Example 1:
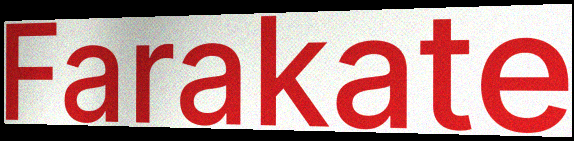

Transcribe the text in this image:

Farakate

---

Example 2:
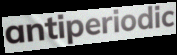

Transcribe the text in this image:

antiperiodic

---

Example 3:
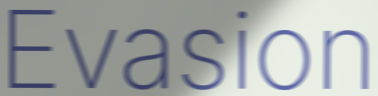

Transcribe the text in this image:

Evasion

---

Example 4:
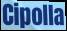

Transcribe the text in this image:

Cipolla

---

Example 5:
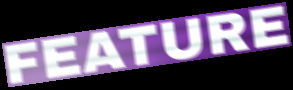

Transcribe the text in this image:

FEATURE